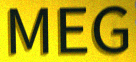
MEG